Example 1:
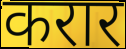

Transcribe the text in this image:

करार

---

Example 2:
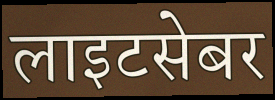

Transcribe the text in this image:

लाइटसेबर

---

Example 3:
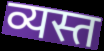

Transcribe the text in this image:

व्यस्त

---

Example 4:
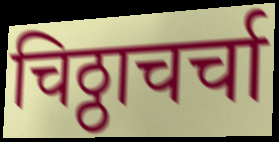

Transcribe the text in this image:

चिठ्ठाचर्चा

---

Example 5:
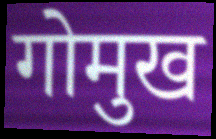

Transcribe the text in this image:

गोमुख